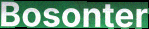
Bosonter